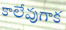
కాలేవుగాక